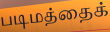
படிமத்தைக்